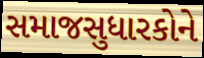
સમાજસુધારકોને